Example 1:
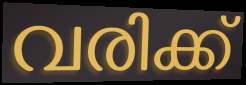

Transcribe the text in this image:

വരിക്ക്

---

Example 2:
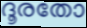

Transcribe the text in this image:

ദൂരതോ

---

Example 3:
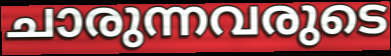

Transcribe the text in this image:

ചാരുന്നവരുടെ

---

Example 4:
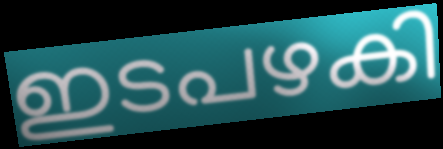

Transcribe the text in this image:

ഇടപഴകി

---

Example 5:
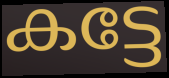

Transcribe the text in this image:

കട്ടേ